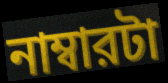
নাম্বারটা